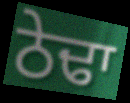
ਠੇਢਾ